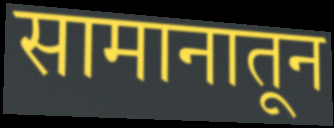
सामानातून